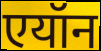
एयॉन